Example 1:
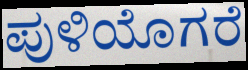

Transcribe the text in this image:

ಪುಳಿಯೊಗರೆ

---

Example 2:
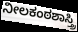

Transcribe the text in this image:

ನೀಲಕಂಠಶಾಸ್ತ್ರಿ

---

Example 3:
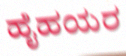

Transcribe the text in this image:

ಹೈಹಯರ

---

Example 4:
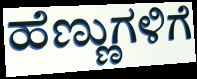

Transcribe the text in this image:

ಹೆಣ್ಣುಗಳಿಗೆ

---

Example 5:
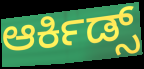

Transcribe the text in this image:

ಆರ್ಕಿಡ್ಸ್